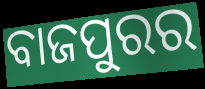
ବାଜପୁରର